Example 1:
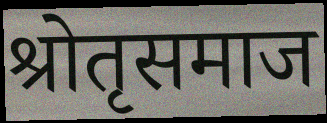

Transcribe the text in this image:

श्रोतृसमाज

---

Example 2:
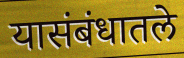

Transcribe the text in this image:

यासंबंधातले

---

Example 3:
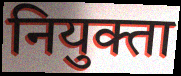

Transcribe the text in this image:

नियुक्ता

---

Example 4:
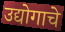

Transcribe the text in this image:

उद्योगाचे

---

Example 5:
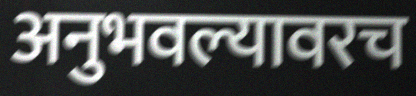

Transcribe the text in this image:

अनुभवल्यावरच